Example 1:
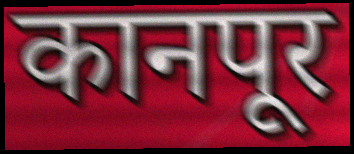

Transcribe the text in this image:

कानपूर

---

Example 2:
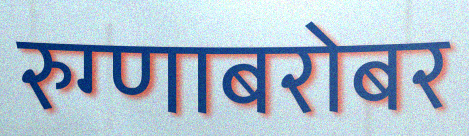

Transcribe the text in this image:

रुग्णाबरोबर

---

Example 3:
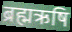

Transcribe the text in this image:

ब्रह्मऋषि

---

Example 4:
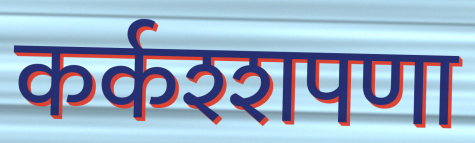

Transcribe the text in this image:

कर्कश्शपणा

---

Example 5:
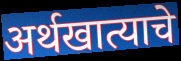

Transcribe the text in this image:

अर्थखात्याचे